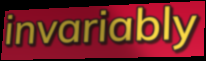
invariably